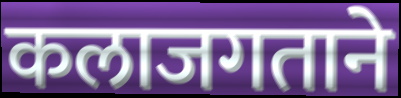
कलाजगताने